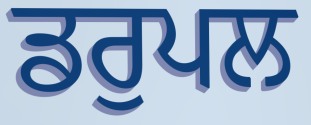
ਡਰੁਪਲ